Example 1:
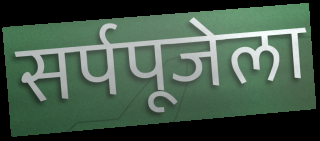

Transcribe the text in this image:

सर्पपूजेला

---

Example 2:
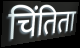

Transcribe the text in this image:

चिंतिता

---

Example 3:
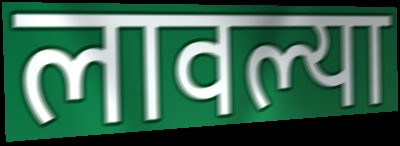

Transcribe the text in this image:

लावल्या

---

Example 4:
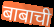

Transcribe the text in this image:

बाबाची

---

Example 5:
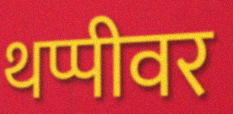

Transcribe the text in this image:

थप्पीवर